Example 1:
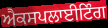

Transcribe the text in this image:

ਐਕਸਪਲਾਈਟਿੰਗ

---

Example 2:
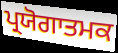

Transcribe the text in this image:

ਪ੍ਰਯੋਗਾਤਮਕ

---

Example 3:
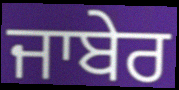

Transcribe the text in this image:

ਜਾਬੇਰ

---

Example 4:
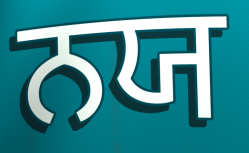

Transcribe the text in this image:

ਨਯ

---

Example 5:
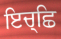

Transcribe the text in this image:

ਇਚ੍ਛਿ